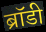
ब्रॉडी